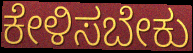
ಕೇಳಿಸಬೇಕು